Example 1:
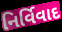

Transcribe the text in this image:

નિર્વિવાદ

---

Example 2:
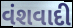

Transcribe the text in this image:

વંશવાદી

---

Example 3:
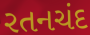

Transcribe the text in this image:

રતનચંદ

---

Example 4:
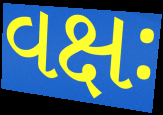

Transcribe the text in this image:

વક્ષઃ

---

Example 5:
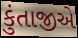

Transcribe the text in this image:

કુંતાજીએ